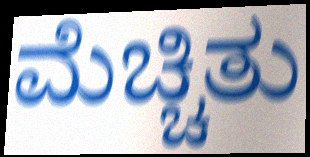
ಮೆಚ್ಚಿತು